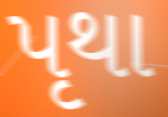
પૃથા